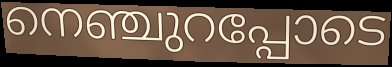
നെഞ്ചുറപ്പോടെ